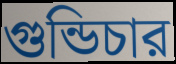
গুন্ডিচার